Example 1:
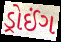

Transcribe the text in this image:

ડ્રોઈંગ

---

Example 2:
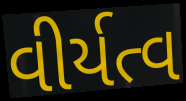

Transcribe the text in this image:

વીર્યત્વ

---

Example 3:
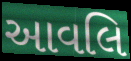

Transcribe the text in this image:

આવલિ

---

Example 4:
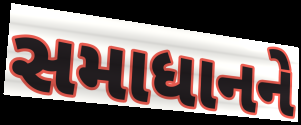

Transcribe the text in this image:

સમાધાનને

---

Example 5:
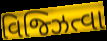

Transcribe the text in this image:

વિજ્ઝિત્વા